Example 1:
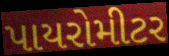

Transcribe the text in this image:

પાયરોમીટર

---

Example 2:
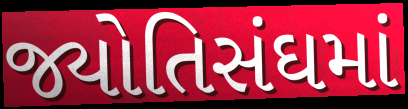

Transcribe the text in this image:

જ્યોતિસંઘમાં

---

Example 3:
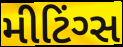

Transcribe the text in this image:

મીટિંગ્સ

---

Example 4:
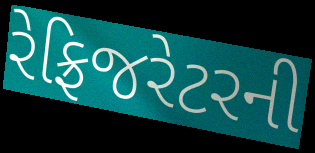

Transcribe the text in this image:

રેફ્રિજરેટરની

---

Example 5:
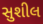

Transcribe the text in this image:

સુશીલ